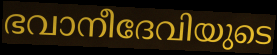
ഭവാനീദേവിയുടെ